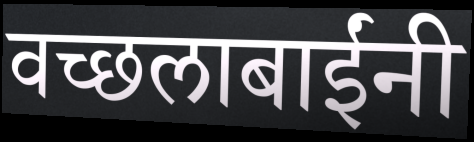
वच्छलाबाईंनी